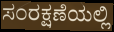
ಸಂರಕ್ಷಣೆಯಲ್ಲಿ